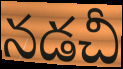
నడచీ